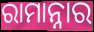
ରାମାନ୍ନାର